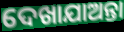
ଦେଖାଯାଅନ୍ତା